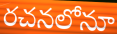
రచనలోనూ